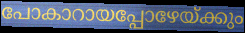
പോകാറായപ്പോഴേയ്ക്കും